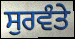
ਸੁਰਵੰਤੇ